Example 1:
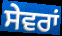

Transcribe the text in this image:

ਸੇਵਰਾਂ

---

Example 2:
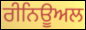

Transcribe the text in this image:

ਰੀਨਿਊਅਲ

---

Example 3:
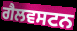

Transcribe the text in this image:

ਗੈਲਵਸਟਨ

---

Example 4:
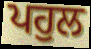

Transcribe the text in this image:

ਪਹੁਲ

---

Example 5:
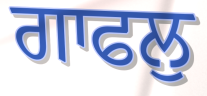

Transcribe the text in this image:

ਗਾਫਲੁ